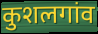
कुशलगांव